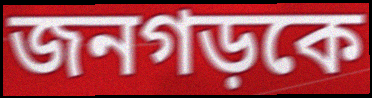
জনগড়কে